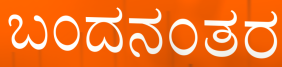
ಬಂದನಂತರ